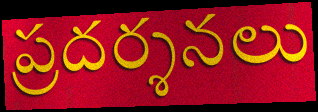
ప్రదర్శనలు